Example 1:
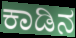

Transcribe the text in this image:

ಕಾಡಿನ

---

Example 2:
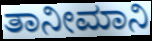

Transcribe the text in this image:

ತಾನೀಮಾನಿ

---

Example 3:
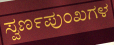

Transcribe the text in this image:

ಸ್ವರ್ಣಪುಂಖಗಳ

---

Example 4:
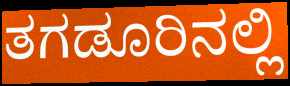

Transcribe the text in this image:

ತಗಡೂರಿನಲ್ಲಿ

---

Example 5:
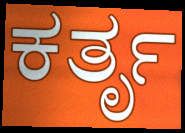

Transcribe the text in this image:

ಕರ್ತೃ